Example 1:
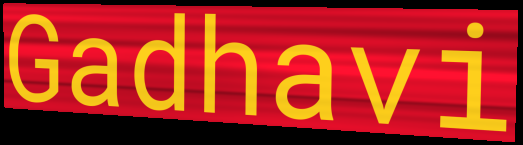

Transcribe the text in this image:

Gadhavi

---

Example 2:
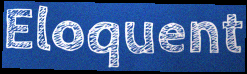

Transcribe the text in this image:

Eloquent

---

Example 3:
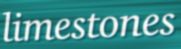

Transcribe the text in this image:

limestones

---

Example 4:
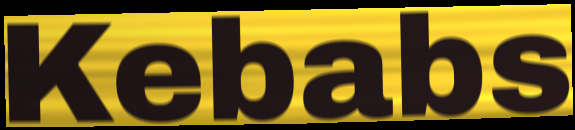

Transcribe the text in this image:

Kebabs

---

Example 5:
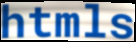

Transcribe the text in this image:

htmls